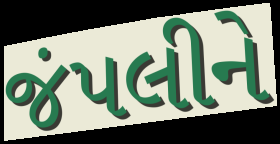
જંપલીને